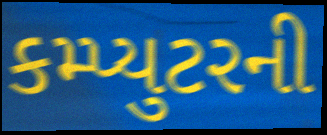
કમ્પ્યુટરની